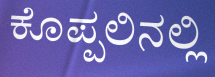
ಕೊಪ್ಪಲಿನಲ್ಲಿ